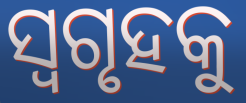
ସ୍ୱଗୃହକୁ